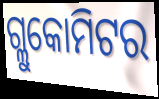
ଗ୍ଲୁକୋମିଟର